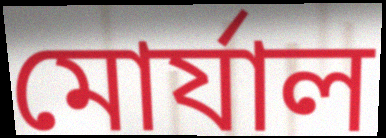
মোর্যাল